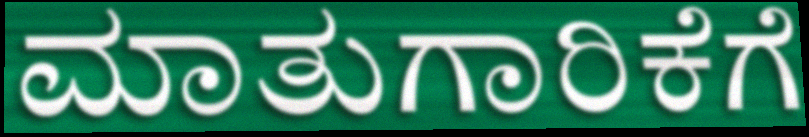
ಮಾತುಗಾರಿಕೆಗೆ